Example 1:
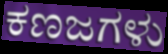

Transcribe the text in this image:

ಕಣಜಗಳು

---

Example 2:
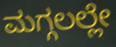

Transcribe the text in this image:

ಮಗ್ಗಲಲ್ಲೇ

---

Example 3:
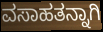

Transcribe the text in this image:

ವಸಾಹತನ್ನಾಗಿ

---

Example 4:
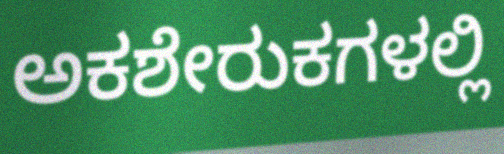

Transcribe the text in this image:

ಅಕಶೇರುಕಗಳಲ್ಲಿ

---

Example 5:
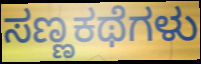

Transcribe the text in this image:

ಸಣ್ಣಕಥೆಗಳು